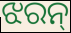
ଝରନ୍